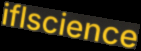
iflscience